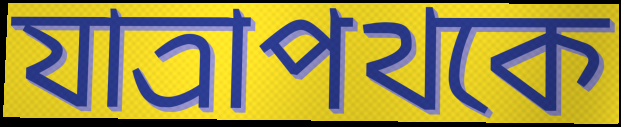
যাত্রাপথকে